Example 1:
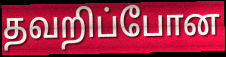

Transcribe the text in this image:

தவறிப்போன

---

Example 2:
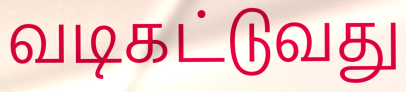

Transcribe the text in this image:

வடிகட்டுவது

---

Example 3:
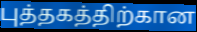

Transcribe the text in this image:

புத்தகத்திற்கான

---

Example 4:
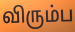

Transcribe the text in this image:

விரும்ப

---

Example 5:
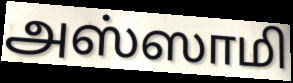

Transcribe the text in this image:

அஸ்ஸாமி